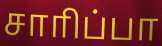
சாரிப்பா